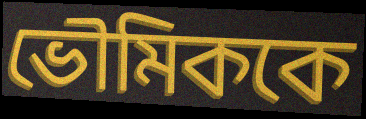
ভৌমিককে